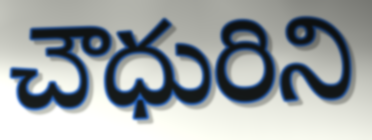
చౌధురిని